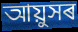
আয়ুসৰ